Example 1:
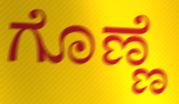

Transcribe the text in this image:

ಗೊಣ್ಣೆ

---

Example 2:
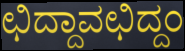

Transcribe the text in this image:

ಛಿದ್ದಾವಛಿದ್ದಂ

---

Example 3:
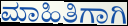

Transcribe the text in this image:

ಮಾಹಿತಿಗಾಗಿ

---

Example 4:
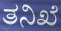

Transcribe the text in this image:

ತನಿಖೆ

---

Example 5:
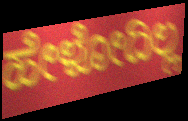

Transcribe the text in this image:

ಹೇಳೋದಿಲ್ಲ